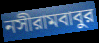
নসীরামবাবুর